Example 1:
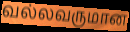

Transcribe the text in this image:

வல்லவருமான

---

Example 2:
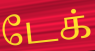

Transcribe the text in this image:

டேக்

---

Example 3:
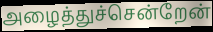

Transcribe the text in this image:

அழைத்துச்சென்றேன்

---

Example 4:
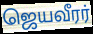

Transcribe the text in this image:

ஜெயவீரர்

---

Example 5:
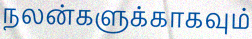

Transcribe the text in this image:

நலன்களுக்காகவும்